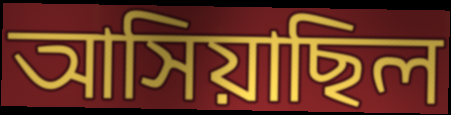
আসিয়াছিল